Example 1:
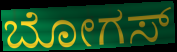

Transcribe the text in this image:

ಬೋಗಸ್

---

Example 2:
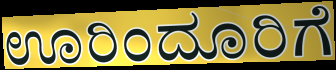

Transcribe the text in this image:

ಊರಿಂದೂರಿಗೆ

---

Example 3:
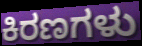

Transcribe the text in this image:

ಕಿರಣಗಳು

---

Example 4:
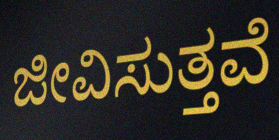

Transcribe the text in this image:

ಜೀವಿಸುತ್ತವೆ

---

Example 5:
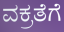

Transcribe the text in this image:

ವಕ್ರತೆಗೆ